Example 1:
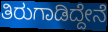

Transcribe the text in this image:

ತಿರುಗಾಡಿದ್ದೇನೆ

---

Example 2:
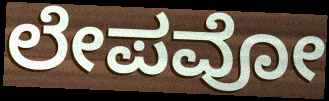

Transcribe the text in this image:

ಲೇಪವೋ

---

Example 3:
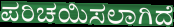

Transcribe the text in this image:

ಪರಿಚಯಿಸಲಾಗಿದೆ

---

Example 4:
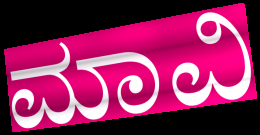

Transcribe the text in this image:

ಮಾವಿ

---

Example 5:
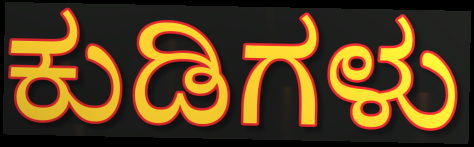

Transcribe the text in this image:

ಕುಡಿಗಳು